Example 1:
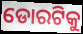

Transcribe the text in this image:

ଡୋରଟିକୁ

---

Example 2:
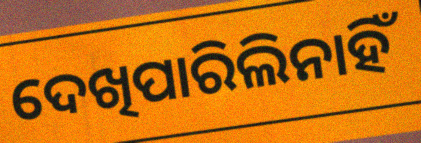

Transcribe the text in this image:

ଦେଖିପାରିଲିନାହିଁ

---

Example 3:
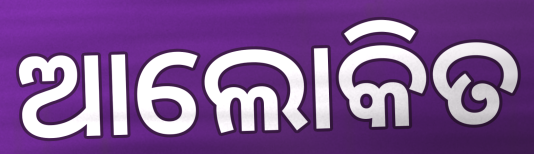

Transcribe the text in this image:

ଆଲୋକିତ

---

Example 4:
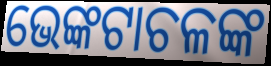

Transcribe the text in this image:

ଭେଙ୍କଟାଚଳଙ୍କ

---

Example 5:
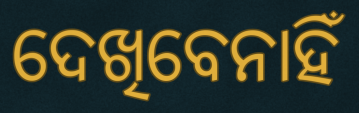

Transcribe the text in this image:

ଦେଖିବେନାହିଁ